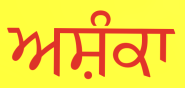
ਅਸ਼ੰਕਾ